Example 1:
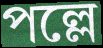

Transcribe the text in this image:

পল্লে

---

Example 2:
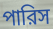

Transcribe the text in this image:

পারিস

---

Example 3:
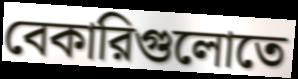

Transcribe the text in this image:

বেকারিগুলোতে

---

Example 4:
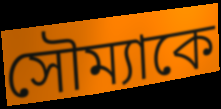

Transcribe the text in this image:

সৌম্যাকে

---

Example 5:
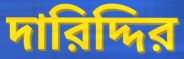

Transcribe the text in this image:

দারিদ্দির